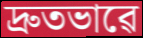
দ্ৰুতভাৱে